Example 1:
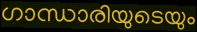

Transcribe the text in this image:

ഗാന്ധാരിയുടെയും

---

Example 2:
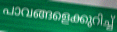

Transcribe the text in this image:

പാവങ്ങളെക്കുറിച്ച്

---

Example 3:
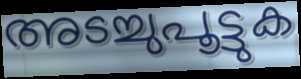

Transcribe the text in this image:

അടച്ചുപൂട്ടുക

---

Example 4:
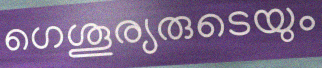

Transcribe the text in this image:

ഗെശൂര്യരുടെയും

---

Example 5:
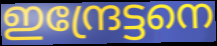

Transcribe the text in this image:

ഇന്ദ്രേട്ടനെ